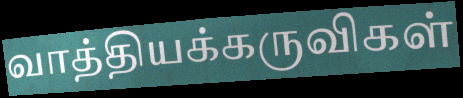
வாத்தியக்கருவிகள்